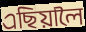
এছিয়ালৈ